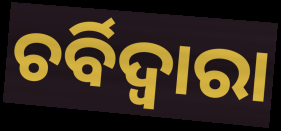
ଚର୍ବିଦ୍ଵାରା